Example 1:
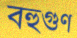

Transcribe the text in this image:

বহুগুণ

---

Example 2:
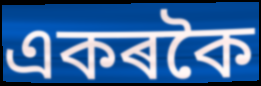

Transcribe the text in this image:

একৰকৈ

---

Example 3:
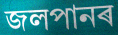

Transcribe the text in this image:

জলপানৰ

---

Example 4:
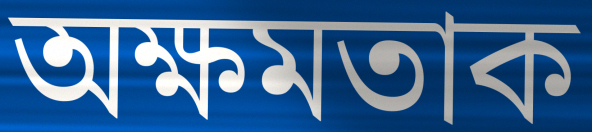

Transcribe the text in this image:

অক্ষমতাক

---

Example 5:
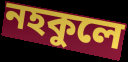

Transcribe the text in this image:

নহকুলে